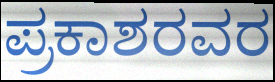
ಪ್ರಕಾಶರವರ